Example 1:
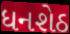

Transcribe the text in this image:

ધનશેઠ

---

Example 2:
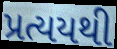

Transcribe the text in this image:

પ્રત્યયથી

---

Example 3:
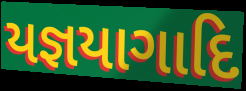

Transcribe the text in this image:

યજ્ઞયાગાદિ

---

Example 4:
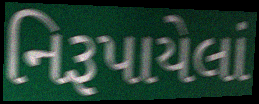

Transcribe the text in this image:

નિરૂપાયેલાં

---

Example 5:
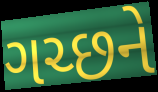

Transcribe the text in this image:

ગચ્છને